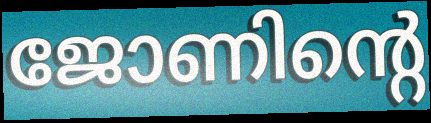
ജോണിന്റെ